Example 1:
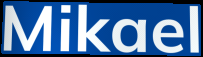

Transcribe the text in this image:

Mikael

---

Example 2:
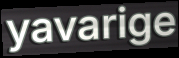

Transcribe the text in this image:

yavarige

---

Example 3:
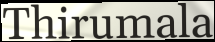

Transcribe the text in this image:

Thirumala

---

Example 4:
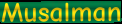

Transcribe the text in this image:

Musalman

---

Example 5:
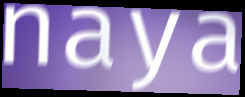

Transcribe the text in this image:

naya